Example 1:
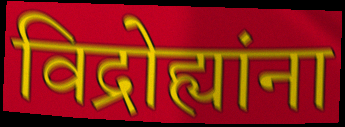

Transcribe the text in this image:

विद्रोह्यांना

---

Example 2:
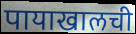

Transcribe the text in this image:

पायाखालची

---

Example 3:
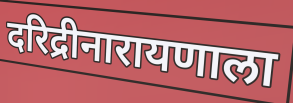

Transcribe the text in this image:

दरिद्रीनारायणाला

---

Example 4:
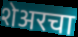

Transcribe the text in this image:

शेअरचा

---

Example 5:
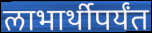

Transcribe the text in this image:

लाभार्थीपर्यंत